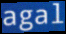
agal